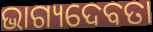
ଭାଗ୍ୟଦେବତା